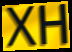
XH